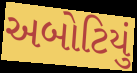
અબોટિયું